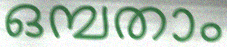
ഒമ്പതാം